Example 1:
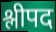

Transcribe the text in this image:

श्लीपद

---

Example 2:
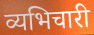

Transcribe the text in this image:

व्यभिचारी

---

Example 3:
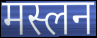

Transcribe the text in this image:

मस्लन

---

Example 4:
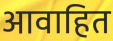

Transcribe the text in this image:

आवाहित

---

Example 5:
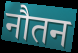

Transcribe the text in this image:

नौतन